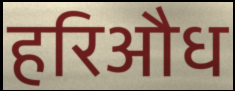
हरिऔध